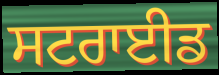
ਸਟਰਾਈਡ